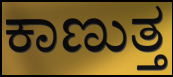
ಕಾಣುತ್ತ